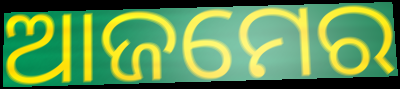
ଆଜମେର